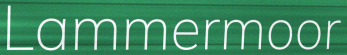
Lammermoor